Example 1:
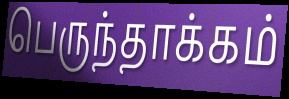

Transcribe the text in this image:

பெருந்தாக்கம்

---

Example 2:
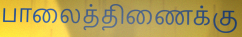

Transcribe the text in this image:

பாலைத்திணைக்கு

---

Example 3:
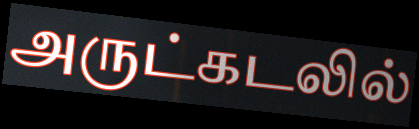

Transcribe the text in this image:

அருட்கடலில்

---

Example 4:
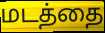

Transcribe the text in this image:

மடத்தை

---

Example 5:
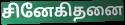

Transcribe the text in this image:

சினேகிதனை